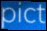
pict